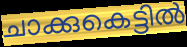
ചാക്കുകെട്ടിൽ